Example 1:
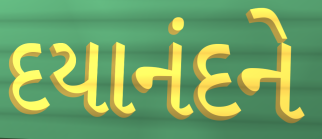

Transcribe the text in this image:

દયાનંદને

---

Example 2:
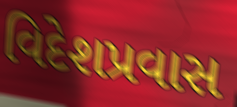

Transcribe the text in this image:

વિદેશપ્રવાસ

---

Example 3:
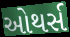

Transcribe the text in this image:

ઓથર્સ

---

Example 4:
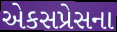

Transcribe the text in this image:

એકસપ્રેસના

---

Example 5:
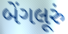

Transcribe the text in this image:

બેંગલૂરું